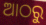
ଆଠରୁ